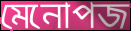
মেনোপজ